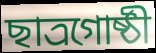
ছাত্রগোষ্ঠী